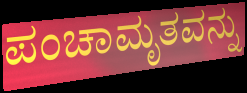
ಪಂಚಾಮೃತವನ್ನು